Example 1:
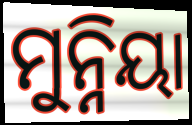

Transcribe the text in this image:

ମୁନ୍ନିୟା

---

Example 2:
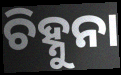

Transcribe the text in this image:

ଚିହ୍ନୁନା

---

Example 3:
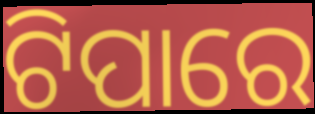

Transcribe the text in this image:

ଟିପାରେ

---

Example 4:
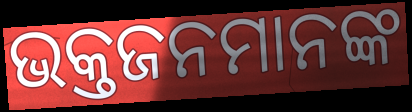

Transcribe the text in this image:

ଭକ୍ତଜନମାନଙ୍କ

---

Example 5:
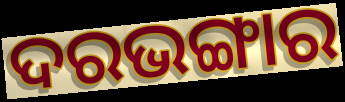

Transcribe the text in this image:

ଦରଭଙ୍ଗାର